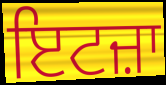
ਇਟਜ਼ਾ